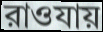
রাওযায়